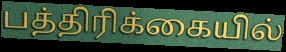
பத்திரிக்கையில்